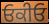
ਓਕੀਓ